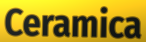
Ceramica